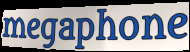
megaphone